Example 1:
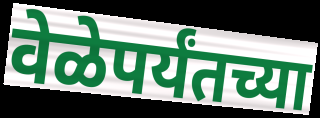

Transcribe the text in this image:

वेळेपर्यंतच्या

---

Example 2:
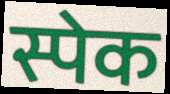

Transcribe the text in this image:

स्पेक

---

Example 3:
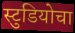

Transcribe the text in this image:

स्टुडियोचा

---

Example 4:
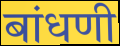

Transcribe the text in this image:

बांधणी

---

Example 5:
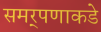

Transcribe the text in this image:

समर्पणाकडे